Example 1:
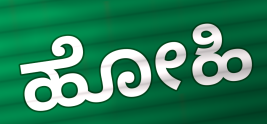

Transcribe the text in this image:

ಹೋಹಿ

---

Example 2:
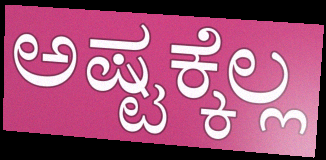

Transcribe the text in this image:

ಅಷ್ಟಕ್ಕೆಲ್ಲ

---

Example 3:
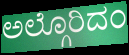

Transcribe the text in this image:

ಅಲ್ಗೊರಿದಂ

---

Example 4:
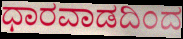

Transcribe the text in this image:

ಧಾರವಾಡದಿಂದ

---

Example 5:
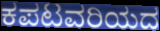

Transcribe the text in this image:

ಕಪಟವರಿಯದ